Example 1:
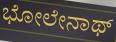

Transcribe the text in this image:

ಭೋಲೇನಾಥ್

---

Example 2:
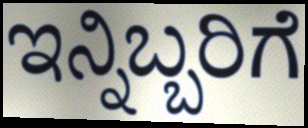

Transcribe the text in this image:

ಇನ್ನಿಬ್ಬರಿಗೆ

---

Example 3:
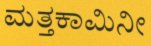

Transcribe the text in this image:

ಮತ್ತಕಾಮಿನೀ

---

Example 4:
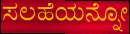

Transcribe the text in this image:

ಸಲಹೆಯನ್ನೋ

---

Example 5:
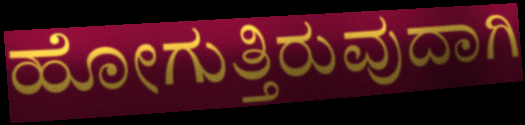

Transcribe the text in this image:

ಹೋಗುತ್ತಿರುವುದಾಗಿ